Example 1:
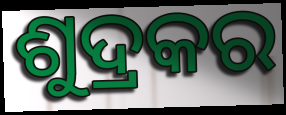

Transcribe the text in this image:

ଶୁଦ୍ରକର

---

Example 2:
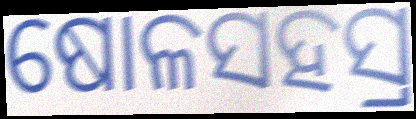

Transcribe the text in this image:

ଷୋଳସହସ୍ର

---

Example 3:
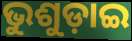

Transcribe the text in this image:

ଭୁଶୁଡ଼ାଇ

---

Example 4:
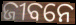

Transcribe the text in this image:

ଜୀବନେ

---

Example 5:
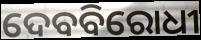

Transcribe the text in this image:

ଦେବବିରୋଧୀ